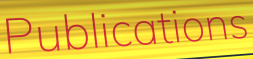
Publications